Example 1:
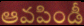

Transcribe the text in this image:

ఆవపిండీ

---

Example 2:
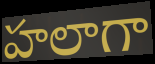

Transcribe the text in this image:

హలాగా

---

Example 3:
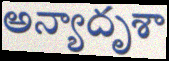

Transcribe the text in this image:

అన్యాదృశా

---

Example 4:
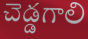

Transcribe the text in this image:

చెడ్డగాలి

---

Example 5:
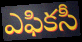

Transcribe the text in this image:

ఎఫికసీ